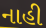
નાહી